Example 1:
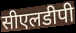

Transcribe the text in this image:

सीएलडीपी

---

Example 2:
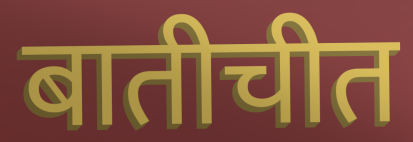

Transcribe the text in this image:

बातीचीत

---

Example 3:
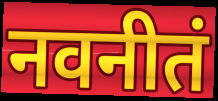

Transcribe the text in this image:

नवनीतं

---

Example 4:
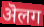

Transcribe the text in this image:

ऄलग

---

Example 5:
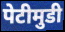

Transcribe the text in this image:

पेटीमुडी